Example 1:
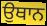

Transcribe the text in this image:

ਉਥਾਨ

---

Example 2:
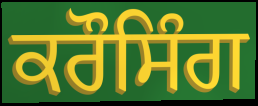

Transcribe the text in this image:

ਕਰੌਸਿੰਗ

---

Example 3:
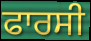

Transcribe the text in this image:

ਫਾਰਸੀ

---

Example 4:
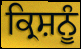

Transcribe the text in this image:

ਕ੍ਰਿਸ਼ਨੂੰ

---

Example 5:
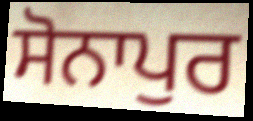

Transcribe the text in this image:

ਸੋਨਾਪੁਰ